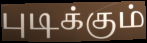
புடிக்கும்